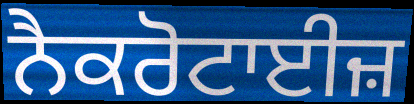
ਨੈਕਰੋਟਾਈਜ਼